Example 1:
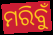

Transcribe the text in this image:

ମରିବୁଁ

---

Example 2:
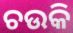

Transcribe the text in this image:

ଚଉକି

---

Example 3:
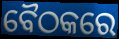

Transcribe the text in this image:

ବୈଠକରେ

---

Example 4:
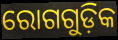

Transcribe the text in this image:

ରୋଗଗୁଡ଼ିକ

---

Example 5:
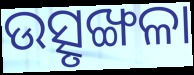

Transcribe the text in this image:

ଉତ୍ସୃଙ୍ଖଳା